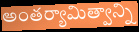
అంతర్యామిత్వాన్ని